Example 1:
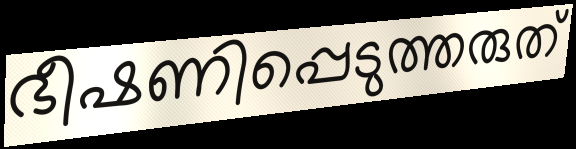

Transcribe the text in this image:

ഭീഷണിപ്പെടുത്തരുത്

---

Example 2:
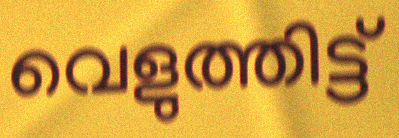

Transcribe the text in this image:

വെളുത്തിട്ട്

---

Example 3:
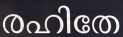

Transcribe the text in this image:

രഹിതേ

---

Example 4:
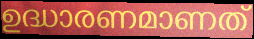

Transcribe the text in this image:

ഉദ്ധാരണമാണത്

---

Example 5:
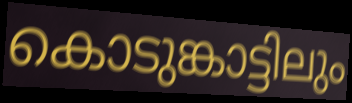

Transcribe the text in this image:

കൊടുങ്കാട്ടിലും